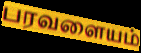
பரவளையம்